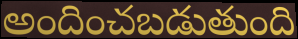
అందించబడుతుంది